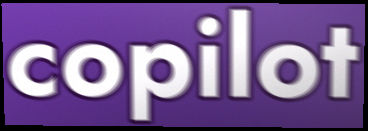
copilot